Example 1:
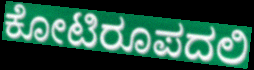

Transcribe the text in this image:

ಕೋಟಿರೂಪದಲಿ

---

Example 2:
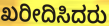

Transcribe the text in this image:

ಖರೀದಿಸಿದರು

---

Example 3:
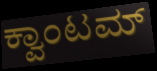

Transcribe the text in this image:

ಕ್ವಾಂಟಮ್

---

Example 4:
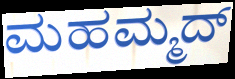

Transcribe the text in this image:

ಮಹಮ್ಮದ್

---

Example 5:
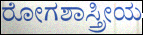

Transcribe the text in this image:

ರೋಗಶಾಸ್ತ್ರೀಯ